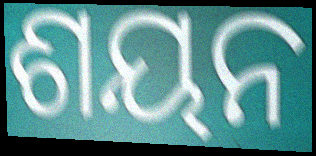
ଶୟନ